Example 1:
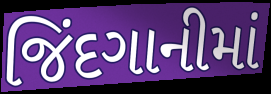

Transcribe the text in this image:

જિંદગાનીમાં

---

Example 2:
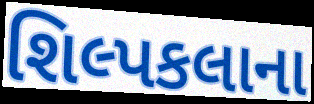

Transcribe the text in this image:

શિલ્પકલાના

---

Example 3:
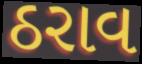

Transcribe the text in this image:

ઠરાવ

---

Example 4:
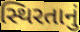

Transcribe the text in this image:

સ્થિરતાનું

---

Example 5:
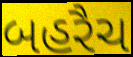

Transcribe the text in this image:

બહરૈચ